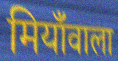
मियाँवाला